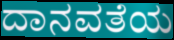
ದಾನವತೆಯ